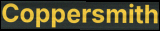
Coppersmith